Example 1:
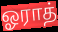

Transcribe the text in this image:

ஓராத்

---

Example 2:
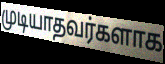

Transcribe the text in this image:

முடியாதவர்களாக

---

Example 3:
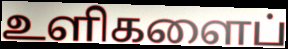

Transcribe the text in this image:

உளிகளைப்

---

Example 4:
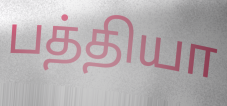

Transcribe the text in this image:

பத்தியா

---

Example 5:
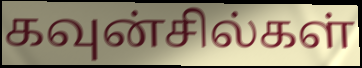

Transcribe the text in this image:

கவுன்சில்கள்